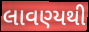
લાવણ્યથી